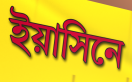
ইয়াসিনে